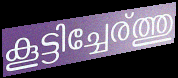
കൂട്ടിച്ചേര്ത്തു